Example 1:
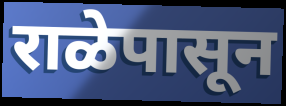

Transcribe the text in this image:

राळेपासून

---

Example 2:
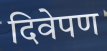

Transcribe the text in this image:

दिवेपण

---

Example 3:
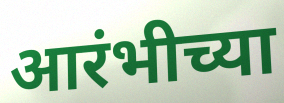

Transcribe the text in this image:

आरंभीच्या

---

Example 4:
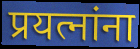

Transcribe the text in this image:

प्रयत्नांना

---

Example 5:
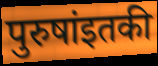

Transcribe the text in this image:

पुरुषांइतकी